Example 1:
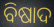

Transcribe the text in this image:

ବିଷାଦ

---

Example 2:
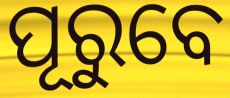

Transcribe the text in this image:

ପୂରୁବେ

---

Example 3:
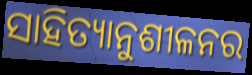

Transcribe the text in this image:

ସାହିତ୍ୟାନୁଶୀଳନର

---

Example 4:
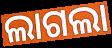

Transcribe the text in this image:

ଲାଗଲା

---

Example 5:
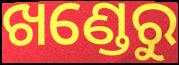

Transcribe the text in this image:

ଖଣ୍ଡେରୁ